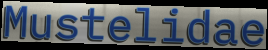
Mustelidae